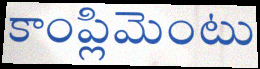
కాంప్లిమెంటు